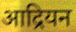
आद्रियन